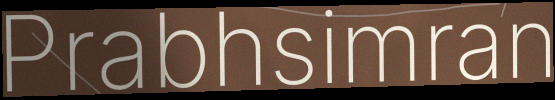
Prabhsimran